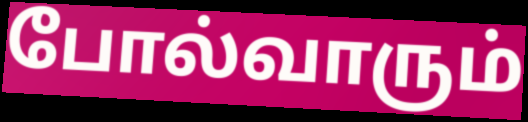
போல்வாரும்